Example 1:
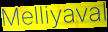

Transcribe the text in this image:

Melliyaval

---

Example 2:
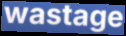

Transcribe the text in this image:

wastage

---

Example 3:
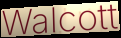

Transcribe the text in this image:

Walcott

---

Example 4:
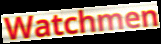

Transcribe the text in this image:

Watchmen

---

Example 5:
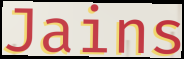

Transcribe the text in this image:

Jains